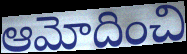
ఆమోదించి